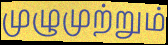
முழுமுற்றும்